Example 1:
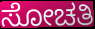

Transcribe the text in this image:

ಸೋಚತಿ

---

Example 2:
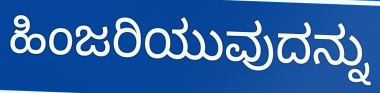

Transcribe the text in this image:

ಹಿಂಜರಿಯುವುದನ್ನು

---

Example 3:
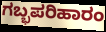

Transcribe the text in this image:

ಗಬ್ಭಪರಿಹಾರಂ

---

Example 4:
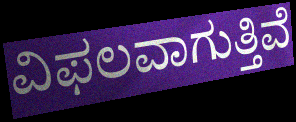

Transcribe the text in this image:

ವಿಫಲವಾಗುತ್ತಿವೆ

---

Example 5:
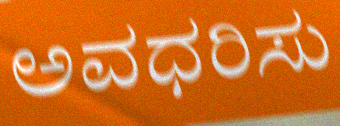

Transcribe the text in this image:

ಅವಧರಿಸು